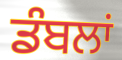
ਡੰਬਲਾਂ